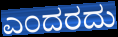
ಎಂದರದು